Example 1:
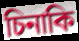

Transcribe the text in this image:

চিনাকি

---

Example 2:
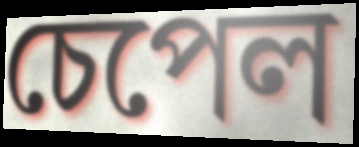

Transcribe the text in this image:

চেপেল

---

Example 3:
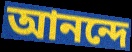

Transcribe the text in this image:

আনন্দে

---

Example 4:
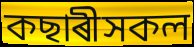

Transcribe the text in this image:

কছাৰীসকল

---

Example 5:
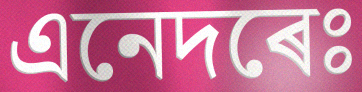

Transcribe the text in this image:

এনেদৰেঃ